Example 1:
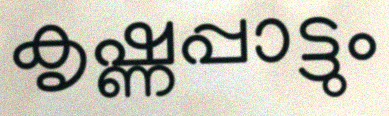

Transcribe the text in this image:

കൃഷ്ണപ്പാട്ടും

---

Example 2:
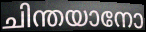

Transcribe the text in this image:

ചിന്തയാനോ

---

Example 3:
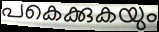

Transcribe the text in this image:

പകെക്കുകയും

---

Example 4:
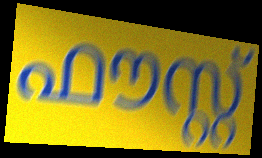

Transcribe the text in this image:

ഫൗസ്റ്റ്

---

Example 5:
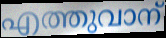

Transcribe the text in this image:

എത്തുവാന്